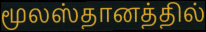
மூலஸ்தானத்தில்